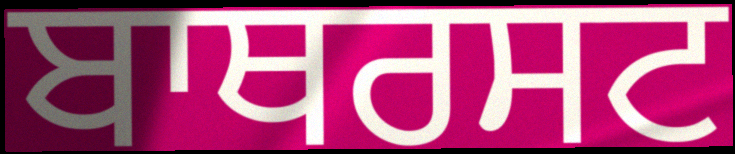
ਬਾਥਰਸਟ